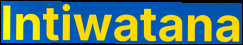
Intiwatana